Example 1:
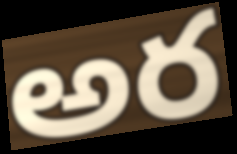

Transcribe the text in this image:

అర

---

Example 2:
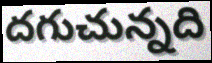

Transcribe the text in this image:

దగుచున్నది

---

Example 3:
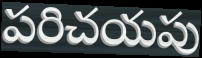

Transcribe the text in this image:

పరిచయపు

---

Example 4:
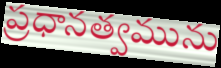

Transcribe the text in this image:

ప్రధానత్వమును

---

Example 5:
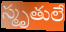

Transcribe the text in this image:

స్మృతులే